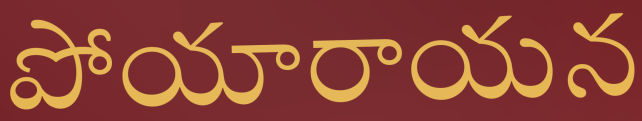
పోయారాయన